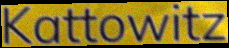
Kattowitz